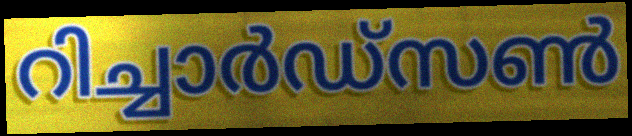
റിച്ചാർഡ്സൺ